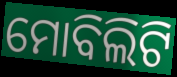
ମୋବିଲିଟି